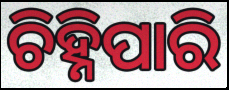
ଚିହ୍ନିପାରି